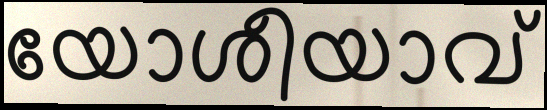
യോശീയാവ്